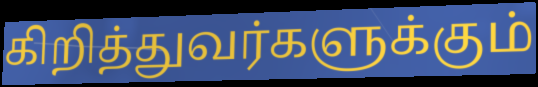
கிறித்துவர்களுக்கும்